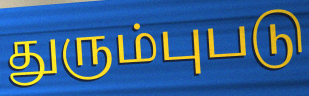
துரும்புபடு